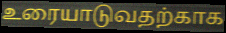
உரையாடுவதற்காக